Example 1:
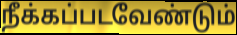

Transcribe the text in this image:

நீக்கப்படவேண்டும்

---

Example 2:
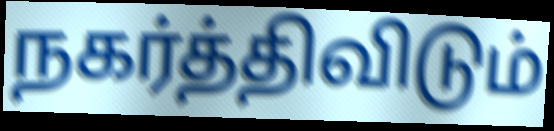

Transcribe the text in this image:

நகர்த்திவிடும்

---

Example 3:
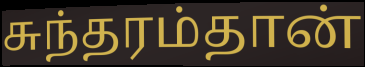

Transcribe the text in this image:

சுந்தரம்தான்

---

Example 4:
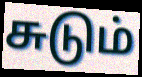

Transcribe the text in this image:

சுடும்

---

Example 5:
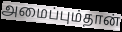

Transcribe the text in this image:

அமைப்பும்தான்